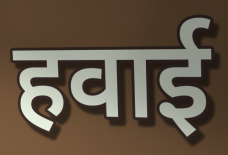
हवाई